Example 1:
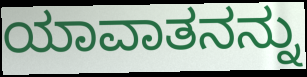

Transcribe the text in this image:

ಯಾವಾತನನ್ನು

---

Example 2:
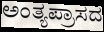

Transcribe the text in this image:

ಅಂತ್ಯಪ್ರಾಸದ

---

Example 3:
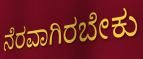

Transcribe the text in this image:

ನೆರವಾಗಿರಬೇಕು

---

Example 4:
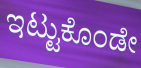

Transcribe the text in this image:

ಇಟ್ಟುಕೊಂಡೇ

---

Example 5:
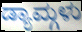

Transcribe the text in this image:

ಡ್ಯಾಮ್ಗಳು